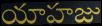
యాహజు